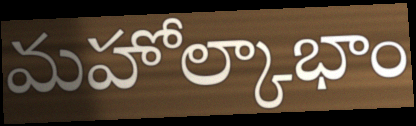
మహోల్కాభాం